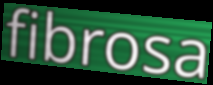
fibrosa